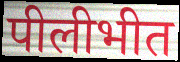
पीलीभीत